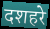
दशहरे